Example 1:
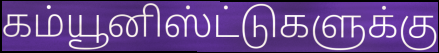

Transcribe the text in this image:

கம்யூனிஸ்ட்டுகளுக்கு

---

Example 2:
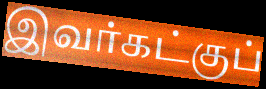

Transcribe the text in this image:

இவர்கட்குப்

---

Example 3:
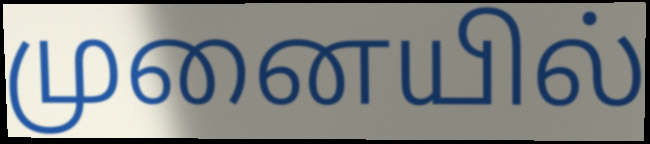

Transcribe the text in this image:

முனையில்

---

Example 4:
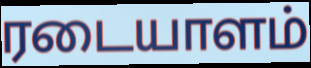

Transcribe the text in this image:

ரடையாளம்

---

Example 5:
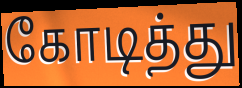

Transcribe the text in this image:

கோடித்து